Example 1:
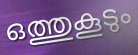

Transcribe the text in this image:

ഒത്തുകൂടും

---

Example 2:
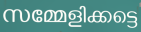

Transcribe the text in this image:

സമ്മേളിക്കട്ടെ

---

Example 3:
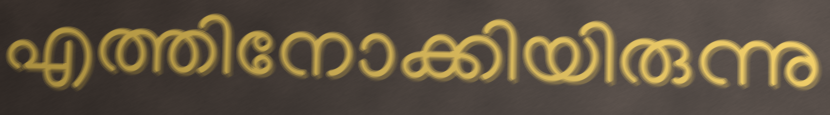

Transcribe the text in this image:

എത്തിനോക്കിയിരുന്നു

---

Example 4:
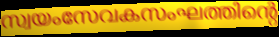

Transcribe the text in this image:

സ്വയംസേവകസംഘത്തിന്റെ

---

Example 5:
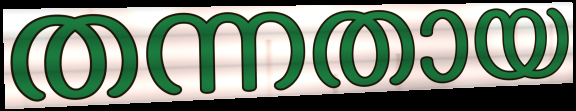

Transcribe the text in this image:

തന്നതായ